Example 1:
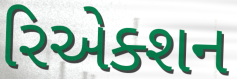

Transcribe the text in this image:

રિએક્શન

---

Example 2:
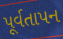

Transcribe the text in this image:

પૂર્વતાપન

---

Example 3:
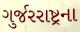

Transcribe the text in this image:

ગુર્જરરાષ્ટ્રના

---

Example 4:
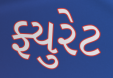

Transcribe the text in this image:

ફ્યુરેટ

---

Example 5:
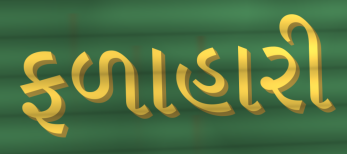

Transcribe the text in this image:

ફળાહારી